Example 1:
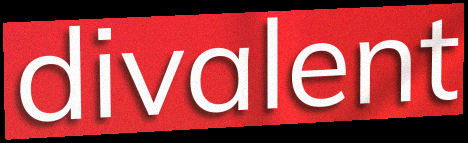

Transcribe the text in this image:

divalent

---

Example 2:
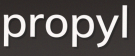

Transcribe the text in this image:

propyl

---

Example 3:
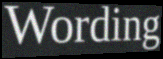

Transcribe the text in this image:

Wording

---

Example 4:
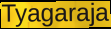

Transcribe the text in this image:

Tyagaraja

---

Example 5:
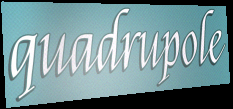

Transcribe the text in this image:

quadrupole